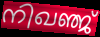
നിഖഞ്ജ്